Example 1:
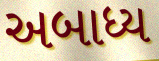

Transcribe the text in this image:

અબાધ્ય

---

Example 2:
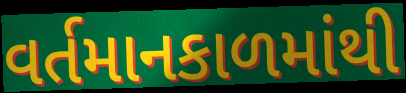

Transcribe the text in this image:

વર્તમાનકાળમાંથી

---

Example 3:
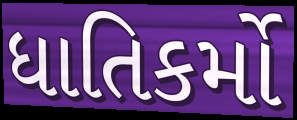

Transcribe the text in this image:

ધાતિકર્મો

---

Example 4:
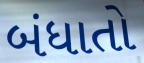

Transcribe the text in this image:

બંધાતો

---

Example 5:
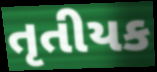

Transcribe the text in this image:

તૃતીયક